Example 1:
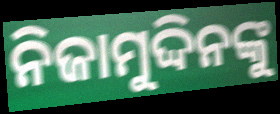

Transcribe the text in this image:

ନିଜାମୁଦ୍ଦିନଙ୍କୁ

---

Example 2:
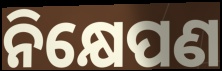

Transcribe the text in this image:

ନିକ୍ଷେପଣ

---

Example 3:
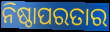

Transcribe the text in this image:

ନିଷ୍ଠାପରତାର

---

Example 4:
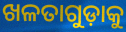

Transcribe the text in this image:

ଖଳତାଗୁଡ଼ାକୁ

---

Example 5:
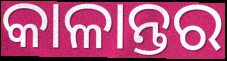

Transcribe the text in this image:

କାଳାନ୍ତର